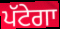
ਪੱਟੇਗਾ